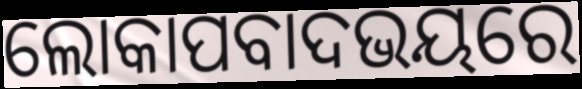
ଲୋକାପବାଦଭୟରେ